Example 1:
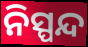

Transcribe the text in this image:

ନିସ୍ପନ୍ଦ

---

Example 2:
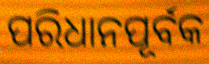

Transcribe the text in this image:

ପରିଧାନପୂର୍ବକ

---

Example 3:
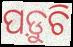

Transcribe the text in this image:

ପଡ଼ୁଚି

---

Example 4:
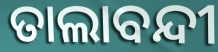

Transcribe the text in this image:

ତାଲାବନ୍ଦୀ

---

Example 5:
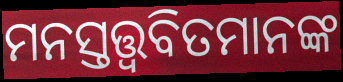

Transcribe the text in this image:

ମନସ୍ତତ୍ତ୍ୱବିତମାନଙ୍କ